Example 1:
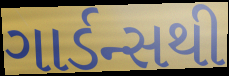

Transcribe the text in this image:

ગાર્ડન્સથી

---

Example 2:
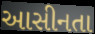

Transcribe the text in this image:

આસીનતા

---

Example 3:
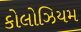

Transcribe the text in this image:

કોલોઝિયમ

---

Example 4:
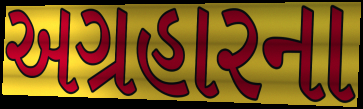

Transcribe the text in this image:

અગ્રહારના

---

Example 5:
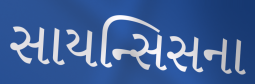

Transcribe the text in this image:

સાયન્સિસના